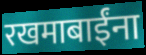
रखमाबाईंना